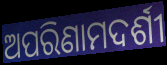
ଅପରିଣାମଦର୍ଶୀ